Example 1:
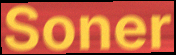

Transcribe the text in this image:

Soner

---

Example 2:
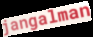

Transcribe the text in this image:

jangalman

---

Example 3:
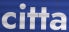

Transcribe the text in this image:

citta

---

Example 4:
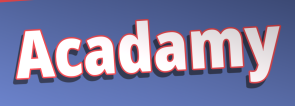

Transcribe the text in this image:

Acadamy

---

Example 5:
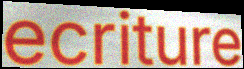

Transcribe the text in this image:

ecriture